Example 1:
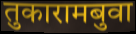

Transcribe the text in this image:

तुकारामबुवा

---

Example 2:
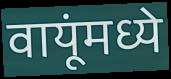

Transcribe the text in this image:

वायूंमध्ये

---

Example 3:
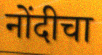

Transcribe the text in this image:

नोंदीचा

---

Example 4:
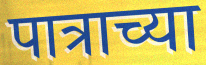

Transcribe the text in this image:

पात्राच्या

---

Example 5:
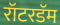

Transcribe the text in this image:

रॉटरडॅम